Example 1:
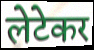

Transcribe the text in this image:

लेटेकर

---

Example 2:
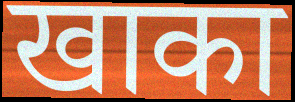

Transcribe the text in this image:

खाका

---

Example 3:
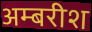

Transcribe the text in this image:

अम्बरीश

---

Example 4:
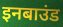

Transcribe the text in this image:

इनबाउंड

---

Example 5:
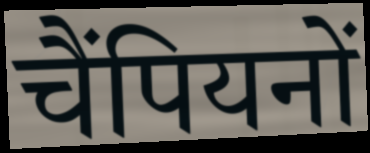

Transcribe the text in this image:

चैंपियनों